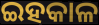
ଇହକାଳ